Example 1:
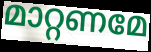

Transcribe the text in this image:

മാറ്റണമേ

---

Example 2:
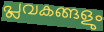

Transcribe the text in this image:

പ്ലവകങ്ങളും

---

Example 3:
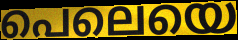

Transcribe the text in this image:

പെലെയെ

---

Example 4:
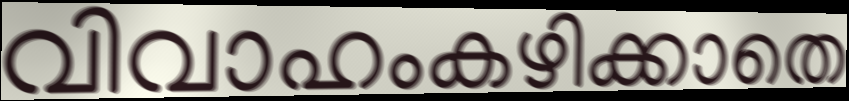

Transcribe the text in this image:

വിവാഹംകഴിക്കാതെ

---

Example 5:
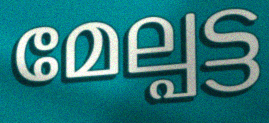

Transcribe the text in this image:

മേല്പട്ട